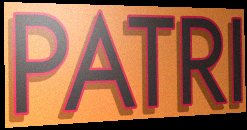
PATRI